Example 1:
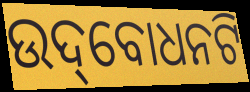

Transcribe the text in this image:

ଉଦ୍‌ବୋଧନଟି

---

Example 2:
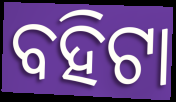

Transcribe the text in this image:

ବହିଟା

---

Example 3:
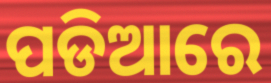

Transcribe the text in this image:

ପଡିଆରେ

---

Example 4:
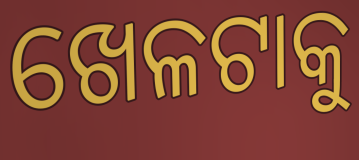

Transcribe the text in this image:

ଖେଳଟାକୁ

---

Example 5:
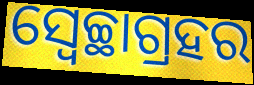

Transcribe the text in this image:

ସ୍ବେଚ୍ଛାଗ୍ରହର